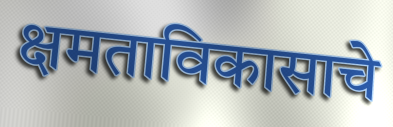
क्षमताविकासाचे